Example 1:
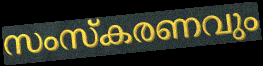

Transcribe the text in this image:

സംസ്കരണവും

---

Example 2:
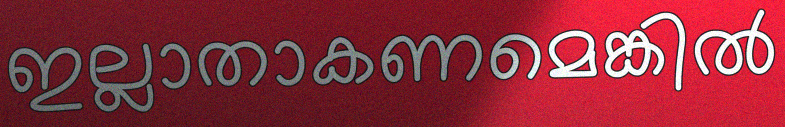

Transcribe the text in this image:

ഇല്ലാതാകണമെങ്കിൽ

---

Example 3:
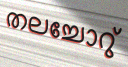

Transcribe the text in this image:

തലച്ചോറു്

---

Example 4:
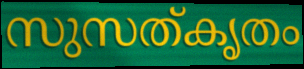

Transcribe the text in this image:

സുസത്കൃതം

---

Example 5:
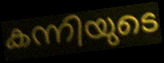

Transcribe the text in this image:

കന്നിയുടെ